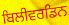
ਬਿਲੀਵਰਡਿਨ